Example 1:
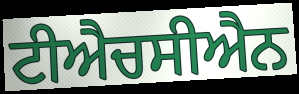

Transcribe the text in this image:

ਟੀਐਚਸੀਐਨ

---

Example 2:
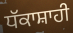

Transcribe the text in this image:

ਧੱਕਾਸ਼ਾਹੀ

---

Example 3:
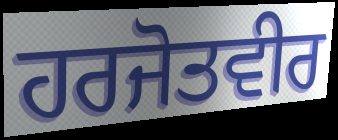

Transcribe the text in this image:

ਹਰਜੋਤਵੀਰ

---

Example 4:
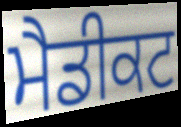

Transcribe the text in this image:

ਮੈਡੀਕਟ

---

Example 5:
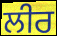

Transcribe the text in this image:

ਲੀਰ